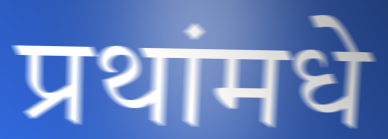
प्रथांमधे